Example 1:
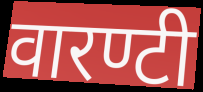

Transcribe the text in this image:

वारण्टी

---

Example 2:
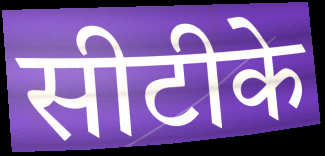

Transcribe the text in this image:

सीटीके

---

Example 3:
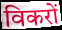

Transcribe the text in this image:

विकरों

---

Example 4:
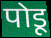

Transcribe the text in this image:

पोडू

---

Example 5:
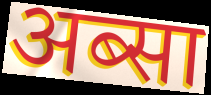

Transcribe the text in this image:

अब्सा